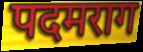
पदमराग